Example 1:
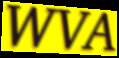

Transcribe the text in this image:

WVA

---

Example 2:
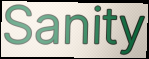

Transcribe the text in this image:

Sanity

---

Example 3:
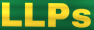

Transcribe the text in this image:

LLPs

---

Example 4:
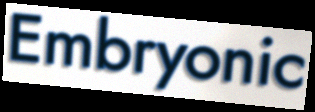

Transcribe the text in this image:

Embryonic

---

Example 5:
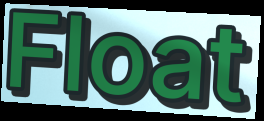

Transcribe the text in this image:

Float